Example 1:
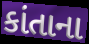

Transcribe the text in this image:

કાંતાના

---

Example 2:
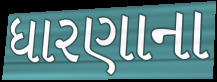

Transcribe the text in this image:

ધારણાના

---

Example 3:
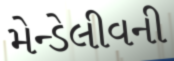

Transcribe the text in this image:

મેન્ડેલીવની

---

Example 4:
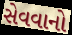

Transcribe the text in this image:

સેવવાનો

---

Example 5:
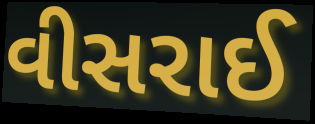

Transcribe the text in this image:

વીસરાઈ